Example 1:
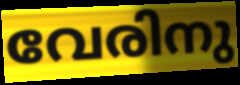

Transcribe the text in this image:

വേരിനു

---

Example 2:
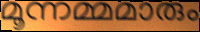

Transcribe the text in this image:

മൂന്നമ്മമാരും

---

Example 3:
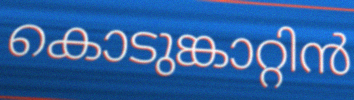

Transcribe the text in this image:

കൊടുങ്കാറ്റിൻ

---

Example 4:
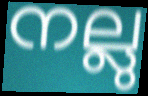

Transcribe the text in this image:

നല്ലു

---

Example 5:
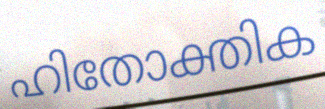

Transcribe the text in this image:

ഹിതോക്തിക